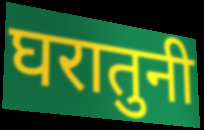
घरातुनी